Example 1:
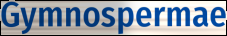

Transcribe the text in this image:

Gymnospermae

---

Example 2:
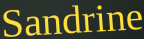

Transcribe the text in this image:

Sandrine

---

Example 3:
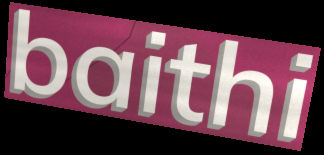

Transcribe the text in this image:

baithi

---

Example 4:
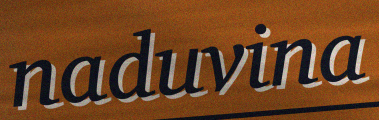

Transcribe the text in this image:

naduvina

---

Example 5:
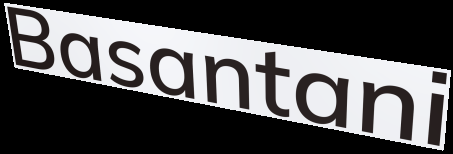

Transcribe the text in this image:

Basantani